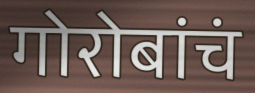
गोरोबांचं